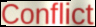
Conflict